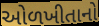
ઓળખીતાનો